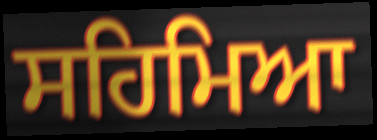
ਸਹਿਮਿਆ